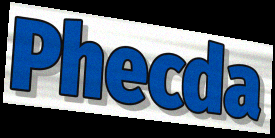
Phecda